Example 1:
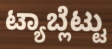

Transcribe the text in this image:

ಟ್ಯಾಬ್ಲೆಟ್ಟು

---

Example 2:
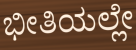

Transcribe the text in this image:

ಭೀತಿಯಲ್ಲೇ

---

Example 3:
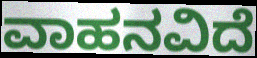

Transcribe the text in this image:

ವಾಹನವಿದೆ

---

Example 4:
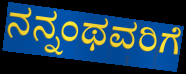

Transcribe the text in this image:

ನನ್ನಂಥವರಿಗೆ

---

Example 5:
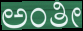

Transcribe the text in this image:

ಅಂತೀ